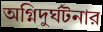
অগ্নিদুর্ঘটনার